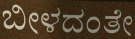
ಬೀಳದಂತೇ